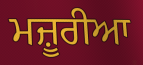
ਮਜ਼ੂਰੀਆ